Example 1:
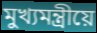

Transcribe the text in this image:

মুখ্যমন্ত্ৰীয়ে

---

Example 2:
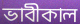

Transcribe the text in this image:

ভাবীকাল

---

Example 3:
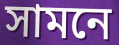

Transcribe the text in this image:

সামনে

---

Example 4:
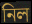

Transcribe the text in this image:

নিল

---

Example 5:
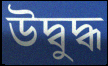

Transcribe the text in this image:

উদ্বুদ্ধ